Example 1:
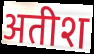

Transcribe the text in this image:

अतीश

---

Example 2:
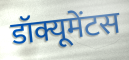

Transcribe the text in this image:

डॉक्यूमेंटस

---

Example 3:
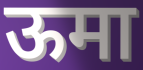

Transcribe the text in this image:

ऊमा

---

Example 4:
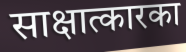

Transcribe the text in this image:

साक्षात्कारका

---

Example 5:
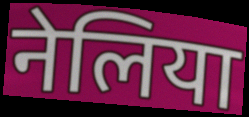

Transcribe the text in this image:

नेलिया